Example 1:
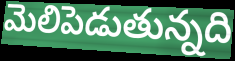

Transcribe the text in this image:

మెలిపెడుతున్నది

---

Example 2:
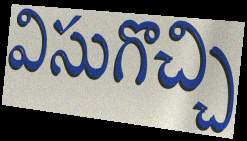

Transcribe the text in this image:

విసుగొచ్చి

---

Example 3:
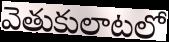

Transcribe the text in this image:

వెతుకులాటలో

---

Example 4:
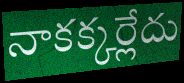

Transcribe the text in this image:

నాకక్కర్లేదు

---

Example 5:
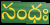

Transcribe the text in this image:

సంధః